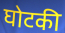
घोटकी